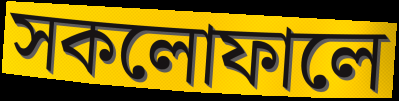
সকলোফালে